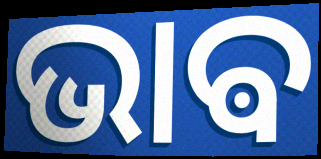
ଭାଵ